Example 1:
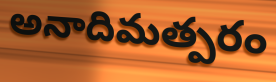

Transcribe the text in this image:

అనాదిమత్పరం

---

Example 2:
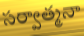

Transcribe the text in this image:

సర్వాత్మనా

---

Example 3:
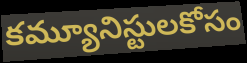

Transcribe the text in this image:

కమ్యూనిస్టులకోసం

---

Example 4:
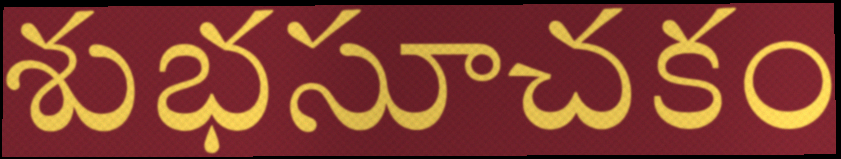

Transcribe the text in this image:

శుభసూచకం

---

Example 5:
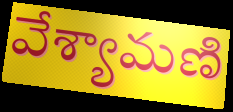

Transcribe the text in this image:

వేశ్యామణి